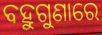
ବହୁଗୁଣାରେ